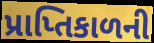
પ્રાપ્તિકાળની